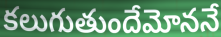
కలుగుతుందేమోననే